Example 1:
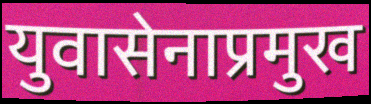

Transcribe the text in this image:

युवासेनाप्रमुख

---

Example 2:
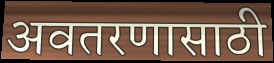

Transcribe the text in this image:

अवतरणासाठी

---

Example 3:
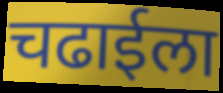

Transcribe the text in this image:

चढाईला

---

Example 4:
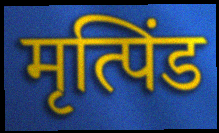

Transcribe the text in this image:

मृत्पिंड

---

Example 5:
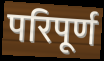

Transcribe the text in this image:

परिपूर्ण